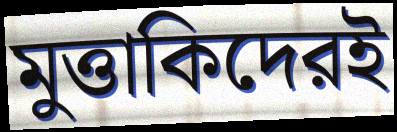
মুত্তাকিদেরই